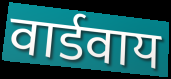
वार्डवाय